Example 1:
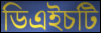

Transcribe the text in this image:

ডিএইচটি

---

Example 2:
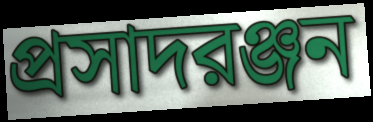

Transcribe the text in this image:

প্রসাদরঞ্জন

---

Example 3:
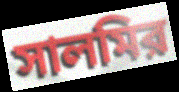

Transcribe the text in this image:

সালমির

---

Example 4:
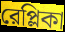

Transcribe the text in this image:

রেপ্লিকা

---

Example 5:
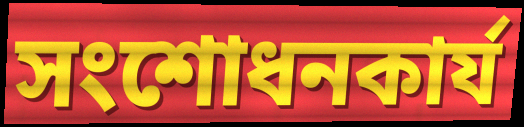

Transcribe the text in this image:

সংশোধনকার্য